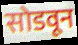
सोडवून